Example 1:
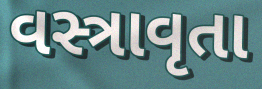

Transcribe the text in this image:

વસ્ત્રાવૃતા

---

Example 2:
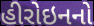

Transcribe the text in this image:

હીરોઇનનો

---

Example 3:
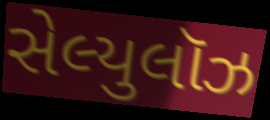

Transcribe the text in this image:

સેલ્યુલૉઝ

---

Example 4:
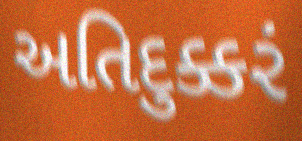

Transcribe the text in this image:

અતિદુક્કરં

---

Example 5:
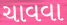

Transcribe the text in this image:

ચાવવા